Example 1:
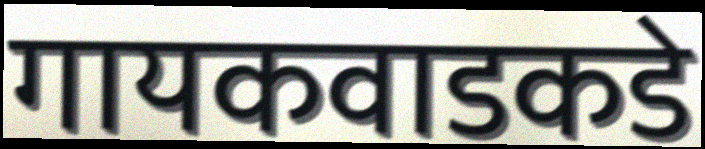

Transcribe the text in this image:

गायकवाडकडे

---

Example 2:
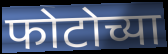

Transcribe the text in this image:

फोटोच्या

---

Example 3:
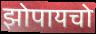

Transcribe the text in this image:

झोपायचो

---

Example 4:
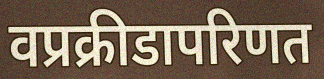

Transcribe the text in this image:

वप्रक्रीडापरिणत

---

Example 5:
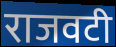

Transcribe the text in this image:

राजवटी